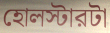
হোলস্টারটা